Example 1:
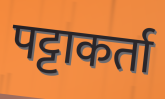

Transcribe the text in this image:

पट्टाकर्ता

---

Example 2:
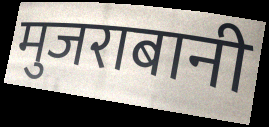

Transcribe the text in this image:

मुजराबानी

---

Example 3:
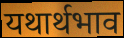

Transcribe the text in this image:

यथार्थभाव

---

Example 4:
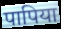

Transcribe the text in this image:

पापिया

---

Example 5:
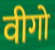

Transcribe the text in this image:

वीगो